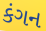
કંગન